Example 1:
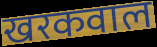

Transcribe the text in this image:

खरकवाल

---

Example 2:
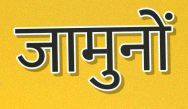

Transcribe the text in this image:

जामुनों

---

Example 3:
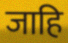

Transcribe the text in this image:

जाहि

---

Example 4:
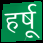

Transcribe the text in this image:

हर्षू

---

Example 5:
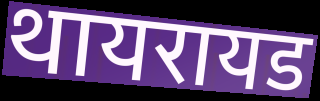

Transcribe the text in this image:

थायरायड